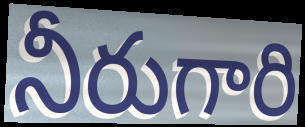
నీరుగారి